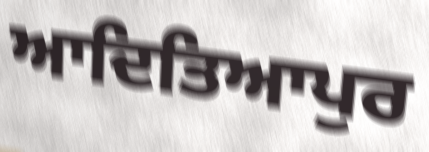
ਆਦਿਤਿਆਪੁਰ